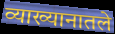
व्याख्यानातले